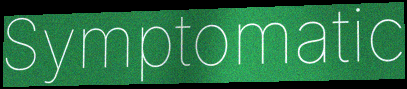
Symptomatic